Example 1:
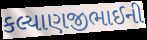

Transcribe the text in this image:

કલ્યાણજીભાઈની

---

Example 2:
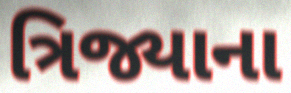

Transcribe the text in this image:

ત્રિજ્યાના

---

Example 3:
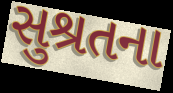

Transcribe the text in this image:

સુશ્રતના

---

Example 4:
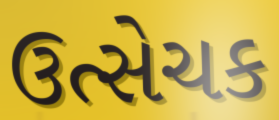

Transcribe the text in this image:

ઉત્સેચક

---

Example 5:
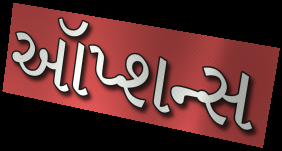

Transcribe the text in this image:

ઑપ્શન્સ